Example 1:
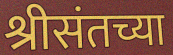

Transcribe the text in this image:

श्रीसंतच्या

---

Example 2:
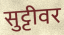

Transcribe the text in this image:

सुट्टीवर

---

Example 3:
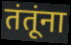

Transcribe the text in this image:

तंतूंना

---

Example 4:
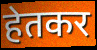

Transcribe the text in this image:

हेतकर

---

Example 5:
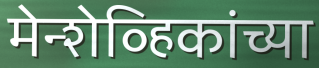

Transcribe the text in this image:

मेन्शेव्हिकांच्या